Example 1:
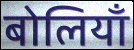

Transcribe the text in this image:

बोलियाँ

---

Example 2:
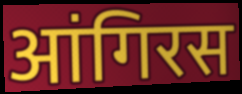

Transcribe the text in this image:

आंगिरस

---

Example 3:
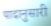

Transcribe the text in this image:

पादानुसारी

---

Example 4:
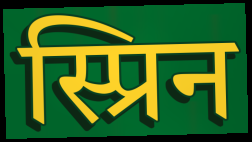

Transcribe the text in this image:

स्प्रिन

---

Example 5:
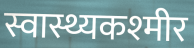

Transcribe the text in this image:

स्वास्थ्यकश्‍मीर